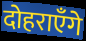
दोहराएँगे